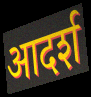
आदर्श